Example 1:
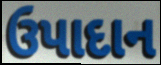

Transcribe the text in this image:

ઉપાદાન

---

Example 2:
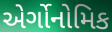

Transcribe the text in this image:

એર્ગોનોમિક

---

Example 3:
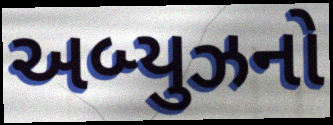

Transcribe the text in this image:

અબ્યુઝનો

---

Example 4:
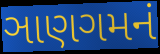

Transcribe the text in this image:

ઞાણગમનં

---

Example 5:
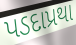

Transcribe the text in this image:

પડદાપ્રથા